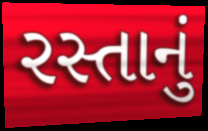
રસ્તાનું